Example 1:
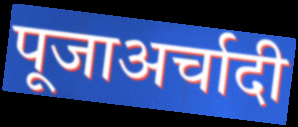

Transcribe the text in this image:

पूजाअर्चादी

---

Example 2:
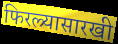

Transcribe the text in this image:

फिरल्यासारखी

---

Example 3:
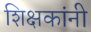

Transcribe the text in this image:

शिक्षकांनी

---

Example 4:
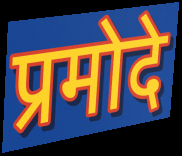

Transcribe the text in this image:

प्रमोदे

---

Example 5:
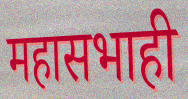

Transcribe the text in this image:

महासभाही